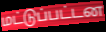
மட்டுப்பட்டன